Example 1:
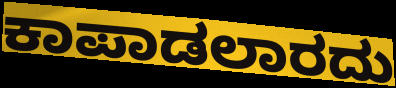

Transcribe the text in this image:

ಕಾಪಾಡಲಾರದು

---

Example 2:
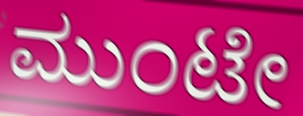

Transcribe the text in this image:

ಮುಂಟೇ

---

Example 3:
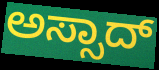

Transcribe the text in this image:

ಅಸ್ಸಾದ್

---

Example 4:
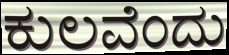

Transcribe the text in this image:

ಕುಲವೆಂದು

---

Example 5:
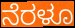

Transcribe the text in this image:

ನೆರಳೂ